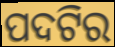
ପଦଟିର